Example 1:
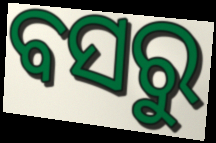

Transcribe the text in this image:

ବସରୁ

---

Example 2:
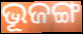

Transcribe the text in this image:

ଭୂଜଙ୍ଗ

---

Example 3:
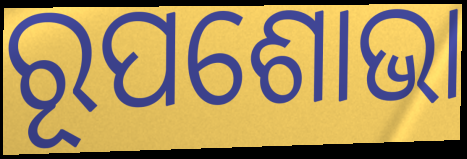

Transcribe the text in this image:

ରୂପଶୋଭା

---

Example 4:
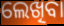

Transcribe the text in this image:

ଲେଖିବା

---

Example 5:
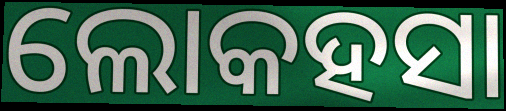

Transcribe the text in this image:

ଲୋକହସା